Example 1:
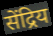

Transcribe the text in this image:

सेंद्रिय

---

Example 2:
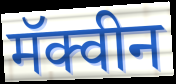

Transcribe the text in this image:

मॅक्वीन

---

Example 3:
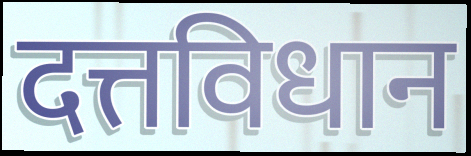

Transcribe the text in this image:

दत्तविधान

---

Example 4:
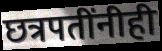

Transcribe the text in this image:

छत्रपतींनीही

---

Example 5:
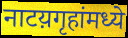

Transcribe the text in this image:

नाटय़गृहांमध्ये